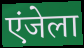
एंजेला